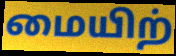
மையிற்